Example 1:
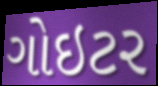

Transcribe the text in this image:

ગોઇટર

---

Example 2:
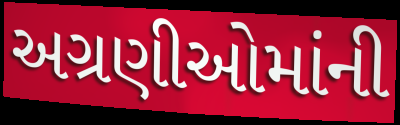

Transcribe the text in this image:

અગ્રણીઓમાંની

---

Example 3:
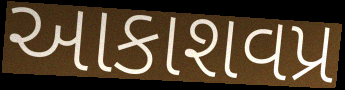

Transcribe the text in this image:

આકાશવપ્ર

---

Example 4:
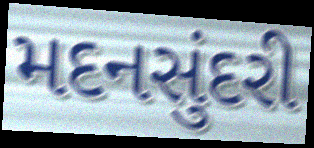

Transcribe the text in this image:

મદનસુંદરી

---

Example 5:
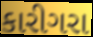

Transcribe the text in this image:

કારીગરા